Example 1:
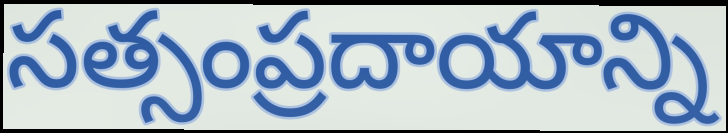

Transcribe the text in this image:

సత్సంప్రదాయాన్ని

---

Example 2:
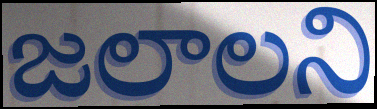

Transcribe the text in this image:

జలాలని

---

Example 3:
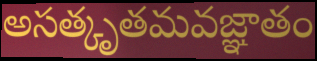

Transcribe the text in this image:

అసత్కృతమవజ్ఞాతం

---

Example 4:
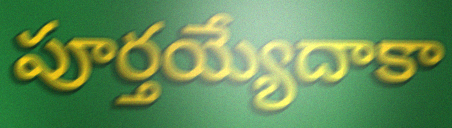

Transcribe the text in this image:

పూర్తయ్యేదాకా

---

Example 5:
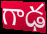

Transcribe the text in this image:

గాఢ